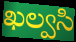
ఖల్వసి